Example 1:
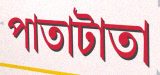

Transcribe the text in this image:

পাতাটাতা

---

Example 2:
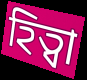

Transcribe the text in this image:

হিত্বা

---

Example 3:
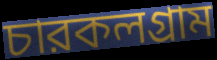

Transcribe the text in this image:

চারকলগ্রাম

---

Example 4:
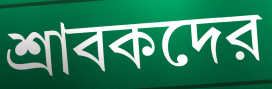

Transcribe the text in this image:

শ্রাবকদের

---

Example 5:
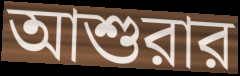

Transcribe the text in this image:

আশুরার